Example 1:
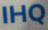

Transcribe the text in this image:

IHQ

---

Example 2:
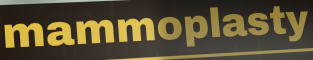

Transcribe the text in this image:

mammoplasty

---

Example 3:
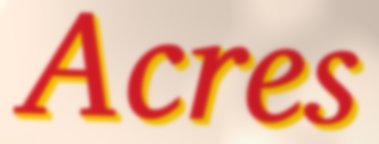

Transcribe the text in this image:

Acres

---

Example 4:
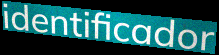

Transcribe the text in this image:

identificador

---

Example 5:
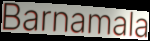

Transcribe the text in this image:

Barnamala